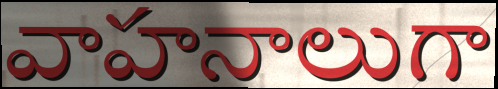
వాహనాలుగా